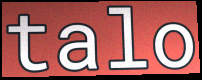
talo